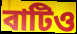
বাটিও